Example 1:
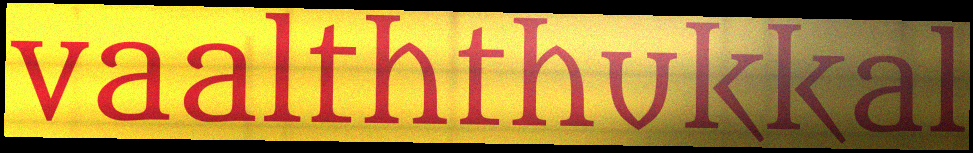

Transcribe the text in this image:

vaalththukkal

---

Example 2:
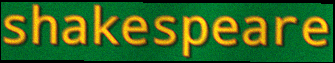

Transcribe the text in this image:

shakespeare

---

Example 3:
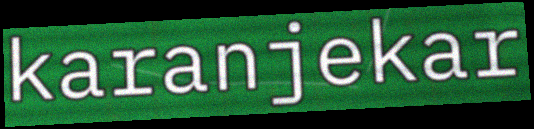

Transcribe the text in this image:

karanjekar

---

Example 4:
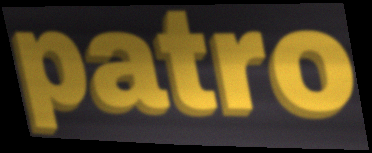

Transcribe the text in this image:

patro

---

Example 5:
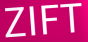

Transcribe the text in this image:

ZIFT